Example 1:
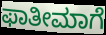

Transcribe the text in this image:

ಫಾತೀಮಾಗೆ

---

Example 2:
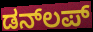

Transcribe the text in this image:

ಡನ್‌ಲಪ್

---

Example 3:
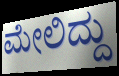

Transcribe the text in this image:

ಮೇಲಿದ್ದು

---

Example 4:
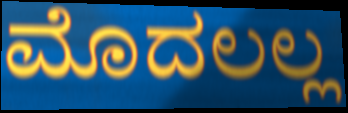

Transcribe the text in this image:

ಮೊದಲಲ್ಲ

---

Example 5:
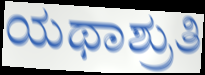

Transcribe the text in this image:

ಯಥಾಶ್ರುತಿ